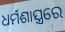
ଧର୍ମଶାସ୍ତ୍ରରେ